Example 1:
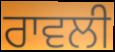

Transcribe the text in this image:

ਰਾਵਲੀ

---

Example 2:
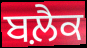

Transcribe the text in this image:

ਬਲ਼ੈਕ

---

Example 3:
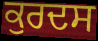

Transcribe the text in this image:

ਕੁਰਦਸ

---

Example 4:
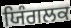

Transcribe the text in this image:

ਯਿੰਗਲਕ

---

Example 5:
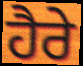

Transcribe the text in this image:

ਹੈਰੇ